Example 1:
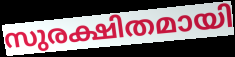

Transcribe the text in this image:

സുരക്ഷിതമായി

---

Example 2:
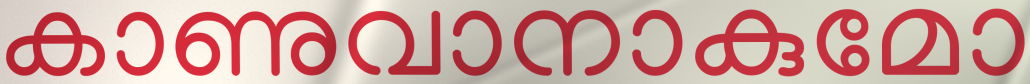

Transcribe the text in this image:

കാണുവാനാകുമോ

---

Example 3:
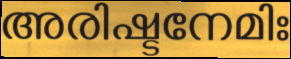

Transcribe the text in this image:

അരിഷ്ടനേമിഃ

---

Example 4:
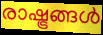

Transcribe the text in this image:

രാഷ്ട്രങ്ങൾ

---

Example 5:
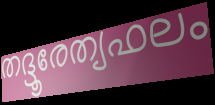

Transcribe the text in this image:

തദ്ദൂരേത്യഫലം